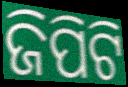
ଜିପିଟି